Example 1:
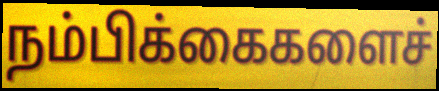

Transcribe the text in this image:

நம்பிக்கைகளைச்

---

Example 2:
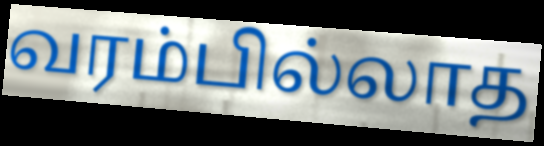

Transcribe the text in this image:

வரம்பில்லாத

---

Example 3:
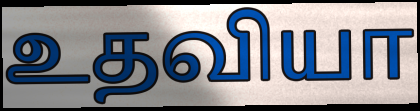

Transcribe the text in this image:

உதவியா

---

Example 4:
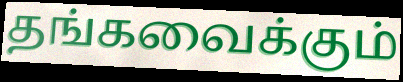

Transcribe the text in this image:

தங்கவைக்கும்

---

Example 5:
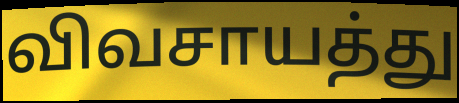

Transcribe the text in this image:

விவசாயத்து